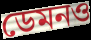
ডেমনও